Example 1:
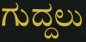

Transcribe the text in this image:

ಗುದ್ದಲು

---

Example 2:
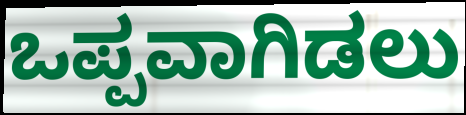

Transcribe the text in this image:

ಒಪ್ಪವಾಗಿಡಲು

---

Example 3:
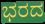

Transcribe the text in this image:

ಭರದ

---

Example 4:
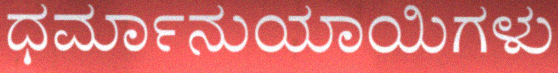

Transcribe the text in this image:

ಧರ್ಮಾನುಯಾಯಿಗಳು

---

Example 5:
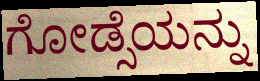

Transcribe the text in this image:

ಗೋಡ್ಸೆಯನ್ನು